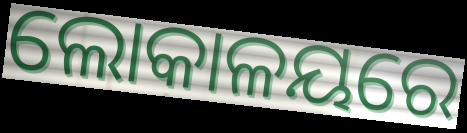
ଲୋକାଳୟରେ